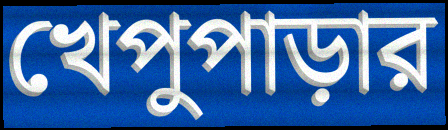
খেপুপাড়ার